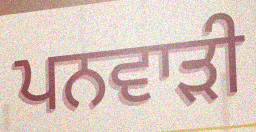
ਪਨਵਾੜੀ